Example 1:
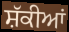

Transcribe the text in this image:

ਸ਼ੱਕੀਆਂ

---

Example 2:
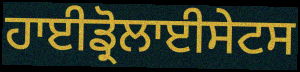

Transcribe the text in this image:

ਹਾਈਡ੍ਰੋਲਾਈਸੇਟਸ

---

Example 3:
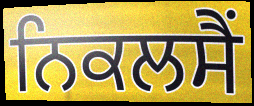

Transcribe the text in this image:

ਨਿਕਲਸੈਂ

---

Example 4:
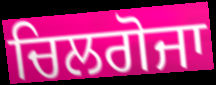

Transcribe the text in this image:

ਚਿਲਗੋਜਾ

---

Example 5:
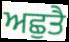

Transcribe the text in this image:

ਅਛੁਤੈ